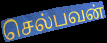
செல்பவன்